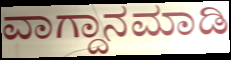
ವಾಗ್ದಾನಮಾಡಿ